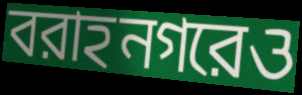
বরাহনগরেও